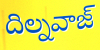
దిల్నవాజ్